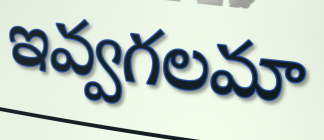
ఇవ్వగలమా